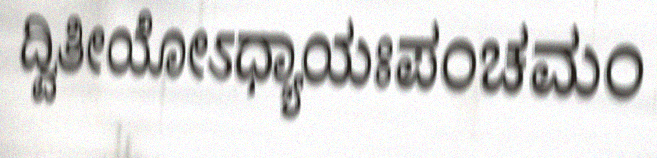
ದ್ವಿತೀಯೋಽಧ್ಯಾಯಃಪಂಚಮಂ